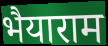
भैयाराम